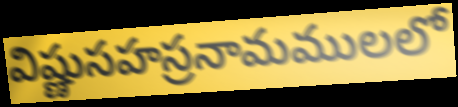
విష్ణుసహస్రనామములలో